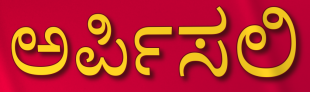
ಅರ್ಪಿಸಲಿ